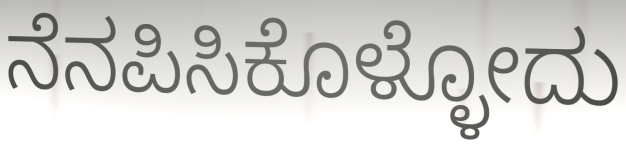
ನೆನಪಿಸಿಕೊಳ್ಳೋದು